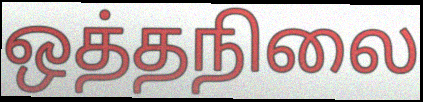
ஒத்தநிலை